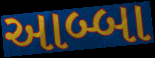
આબ્બા